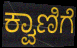
ಕ್ವಾಣಿಗೆ